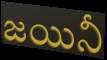
జయినీ